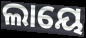
ଲାୟେ